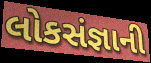
લોકસંજ્ઞાની